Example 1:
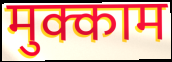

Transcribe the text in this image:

मुक्काम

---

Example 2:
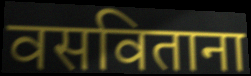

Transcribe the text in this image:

वसविताना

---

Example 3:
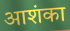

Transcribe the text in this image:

आशंका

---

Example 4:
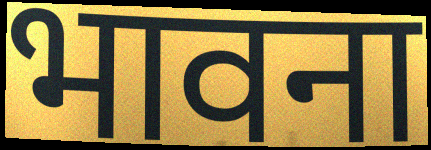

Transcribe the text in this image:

भावना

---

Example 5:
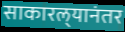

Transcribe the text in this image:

साकारल्यानंतर